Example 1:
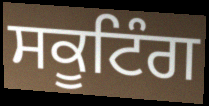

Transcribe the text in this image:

ਸਕੂਟਿੰਗ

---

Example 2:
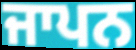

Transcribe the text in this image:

ਜਾਪਨ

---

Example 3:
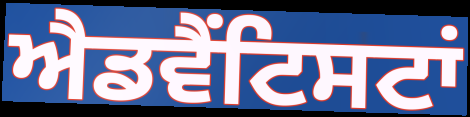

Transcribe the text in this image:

ਐਡਵੈਂਟਿਸਟਾਂ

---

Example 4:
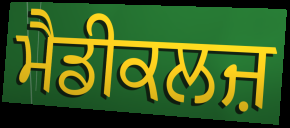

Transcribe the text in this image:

ਮੈਡੀਕਲਜ਼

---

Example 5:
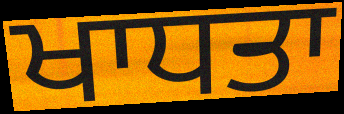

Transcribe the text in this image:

ਖਾਧਤਾ